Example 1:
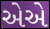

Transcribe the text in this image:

એએ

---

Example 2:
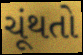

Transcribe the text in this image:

ચૂંથતો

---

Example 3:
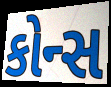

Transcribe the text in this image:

કોન્સ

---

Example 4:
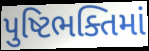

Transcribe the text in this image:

પુષ્ટિભક્તિમાં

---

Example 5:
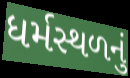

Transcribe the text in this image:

ધર્મસ્થળનું